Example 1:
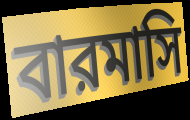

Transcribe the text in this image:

বারমাসি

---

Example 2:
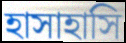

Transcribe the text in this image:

হাসাহাসি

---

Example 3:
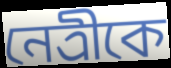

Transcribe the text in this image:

নেত্রীকে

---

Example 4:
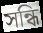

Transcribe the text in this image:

সন্ধি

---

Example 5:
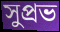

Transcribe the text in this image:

সুপ্রভ